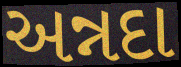
અન્નદા